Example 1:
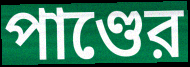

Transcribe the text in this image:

পাণ্ডের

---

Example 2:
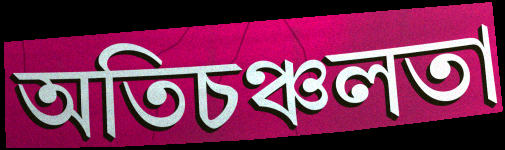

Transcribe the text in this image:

অতিচঞ্চলতা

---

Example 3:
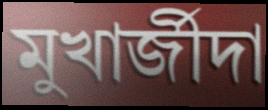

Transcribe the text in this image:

মুখার্জীদা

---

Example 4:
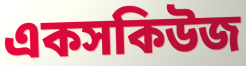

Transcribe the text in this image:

একসকিউজ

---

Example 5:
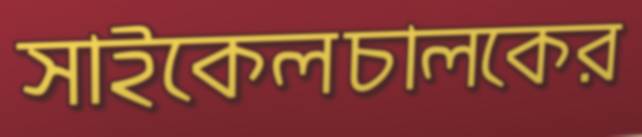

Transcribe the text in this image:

সাইকেলচালকের